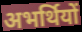
अभर्थियों